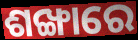
ଶଙ୍ଖାରେ